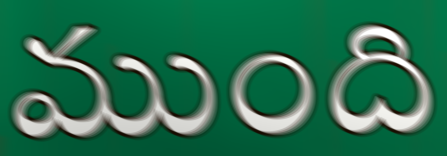
ముంది